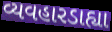
વ્યવહારડાહ્યા